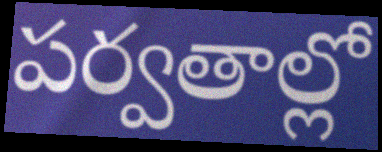
పర్వతాల్లో